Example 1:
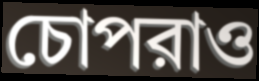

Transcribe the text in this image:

চোপরাও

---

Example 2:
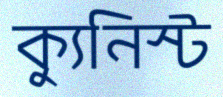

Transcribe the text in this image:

ক্যুনিস্ট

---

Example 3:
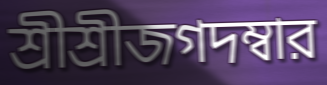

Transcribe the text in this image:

শ্রীশ্রীজগদম্বার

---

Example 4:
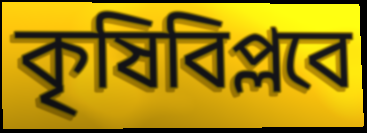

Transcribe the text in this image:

কৃষিবিপ্লবে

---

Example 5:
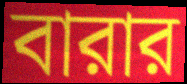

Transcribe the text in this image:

বারার